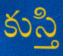
కుస్తి